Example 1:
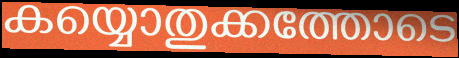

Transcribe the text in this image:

കയ്യൊതുക്കത്തോടെ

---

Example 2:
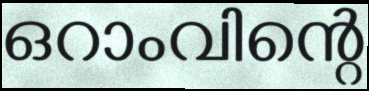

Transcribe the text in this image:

ഒറാംവിന്റെ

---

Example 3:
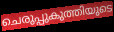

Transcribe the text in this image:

ചെരുപ്പുകുത്തിയുടെ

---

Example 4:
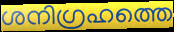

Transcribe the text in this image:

ശനിഗ്രഹത്തെ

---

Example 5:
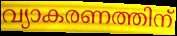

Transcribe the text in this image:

വ്യാകരണത്തിന്